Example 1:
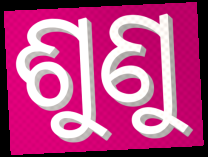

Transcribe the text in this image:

ଶୁଣୁ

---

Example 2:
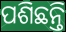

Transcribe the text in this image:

ପଶିଛନ୍ତି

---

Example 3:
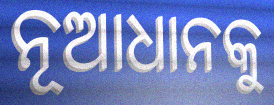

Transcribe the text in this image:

ନୂଆଧାନକୁ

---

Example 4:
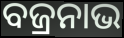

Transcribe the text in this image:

ବଜ୍ରନାଭ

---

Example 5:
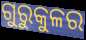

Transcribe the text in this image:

ଗୁରୁକୁଳର